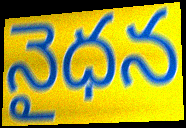
నైధన